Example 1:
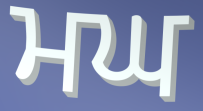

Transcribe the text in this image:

ਮਘ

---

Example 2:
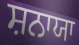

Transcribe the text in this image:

ਸ਼ਨਾਯਾ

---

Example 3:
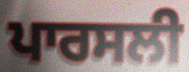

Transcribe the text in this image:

ਪਾਰਸਲੀ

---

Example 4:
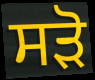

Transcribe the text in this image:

ਸੜੋ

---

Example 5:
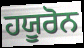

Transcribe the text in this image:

ਹਯੂਰੋਨ